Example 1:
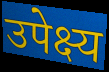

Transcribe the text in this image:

उपेक्ष्य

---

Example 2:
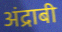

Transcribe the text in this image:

अंद्राबी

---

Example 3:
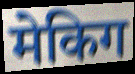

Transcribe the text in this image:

मेकिग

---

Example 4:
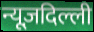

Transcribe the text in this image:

न्यूज़दिल्ली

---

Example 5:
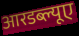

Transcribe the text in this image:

आरडब्ल्यूए